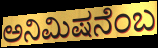
ಅನಿಮಿಷನೆಂಬ